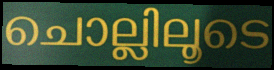
ചൊല്ലിലൂടെ